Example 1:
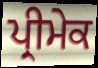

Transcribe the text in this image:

ਪ੍ਰੀਮੇਕ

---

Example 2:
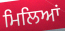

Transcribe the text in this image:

ਮਿਲਿਆਂ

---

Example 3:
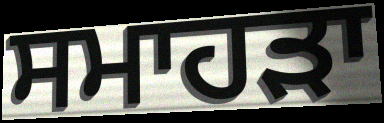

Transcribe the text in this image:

ਸਮਾਹੜਾ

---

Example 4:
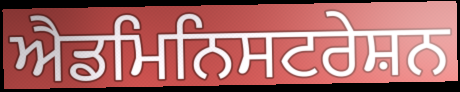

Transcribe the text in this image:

ਐਡਮਿਨਿਸਟਰੇਸ਼ਨ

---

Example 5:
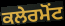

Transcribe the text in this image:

ਕਲੇਰਮੋਂਟ